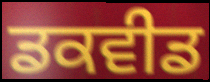
ਡਕਵੀਡ